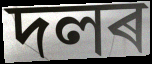
দলৰ